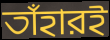
তাঁহারই